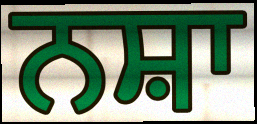
ਨਸ਼ਾ